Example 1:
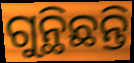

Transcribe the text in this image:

ଗୁନ୍ଥିଛନ୍ତି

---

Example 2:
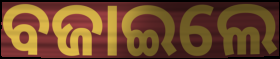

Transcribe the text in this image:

ବଜାଇଲେ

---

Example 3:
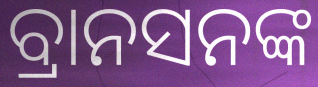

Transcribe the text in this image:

ବ୍ରାନସନଙ୍କ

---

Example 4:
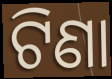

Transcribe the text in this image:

ଟିଣା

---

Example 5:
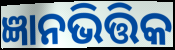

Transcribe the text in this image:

ଜ୍ଞାନଭିତ୍ତିକ